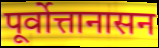
पूर्वोत्तानासन